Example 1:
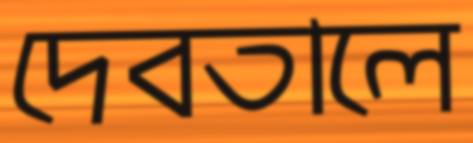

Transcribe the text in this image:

দেবতালে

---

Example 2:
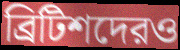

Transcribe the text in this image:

ব্রিটিশদেরও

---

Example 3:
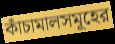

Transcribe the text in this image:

কাঁচামালসমূহের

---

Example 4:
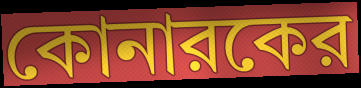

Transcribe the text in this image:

কোনারকের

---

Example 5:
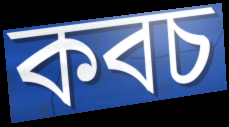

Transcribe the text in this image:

কবচ